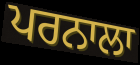
ਪਰਨਾਲਾ